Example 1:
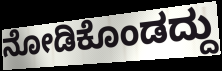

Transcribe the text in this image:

ನೋಡಿಕೊಂಡದ್ದು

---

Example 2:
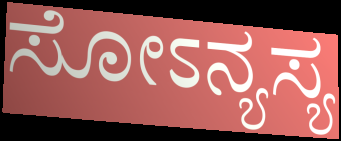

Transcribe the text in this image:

ಸೋಽನ್ಯಸ್ಯ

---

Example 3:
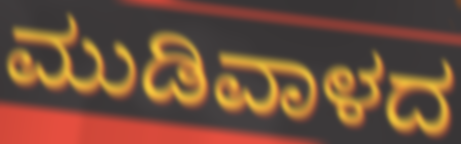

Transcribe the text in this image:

ಮುಡಿವಾಳದ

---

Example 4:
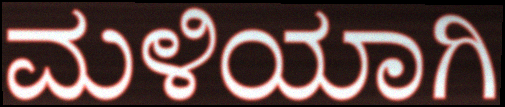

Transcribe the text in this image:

ಮಳಿಯಾಗಿ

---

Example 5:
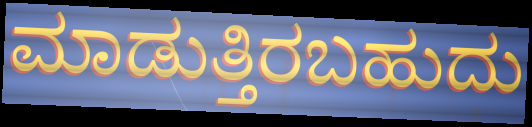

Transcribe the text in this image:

ಮಾಡುತ್ತಿರಬಹುದು